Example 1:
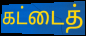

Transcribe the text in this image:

கட்டைத்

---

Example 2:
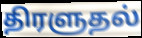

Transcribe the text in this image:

திரளுதல்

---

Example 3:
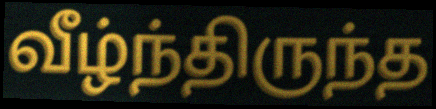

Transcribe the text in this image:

வீழ்ந்திருந்த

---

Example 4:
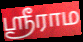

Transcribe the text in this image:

ஸ்ரீராம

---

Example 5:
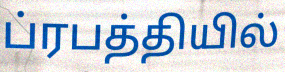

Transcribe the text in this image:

ப்ரபத்தியில்